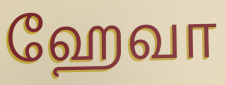
ஹேவா